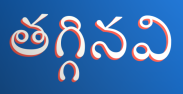
తగ్గినవి